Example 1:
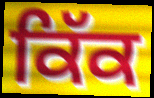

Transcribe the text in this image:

ਕਿੱਕ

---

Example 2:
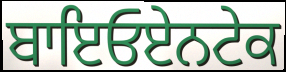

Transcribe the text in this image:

ਬਾਇਓਏਨਟੇਕ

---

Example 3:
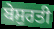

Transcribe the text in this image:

ਬੇਸੁਰਤੀ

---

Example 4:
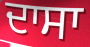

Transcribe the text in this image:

ਦਾਸਾ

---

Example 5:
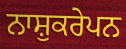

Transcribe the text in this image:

ਨਾਸ਼ੁਕਰੇਪਨ